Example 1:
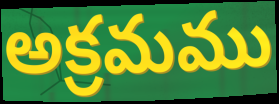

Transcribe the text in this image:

అక్రమము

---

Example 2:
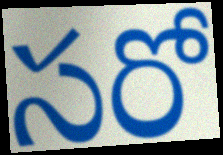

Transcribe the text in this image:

సరో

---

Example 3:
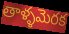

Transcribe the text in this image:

తాళ్ళమెరక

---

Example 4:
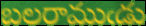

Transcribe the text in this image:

బలరాముఁడు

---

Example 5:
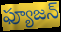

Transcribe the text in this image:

ఫ్యూజన్